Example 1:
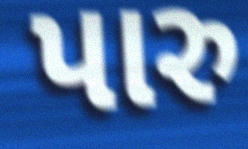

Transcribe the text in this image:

પારુ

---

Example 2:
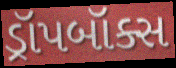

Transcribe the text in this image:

ડ્રૉપબૉક્સ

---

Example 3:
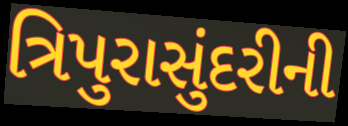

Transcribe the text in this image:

ત્રિપુરાસુંદરીની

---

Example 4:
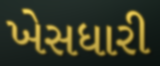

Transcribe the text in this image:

ખેસધારી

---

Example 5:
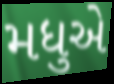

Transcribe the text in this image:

મધુએ